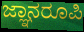
ಜ್ಞಾನರೂಪಿ